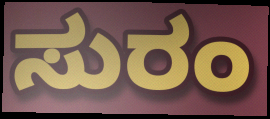
ಸುರಂ